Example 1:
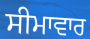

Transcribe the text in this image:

ਸੀਮਾਵਾਰ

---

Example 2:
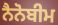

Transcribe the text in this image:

ਨੈਨੋਬੀਮ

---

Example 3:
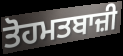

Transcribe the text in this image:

ਤੋਹਮਤਬਾਜ਼ੀ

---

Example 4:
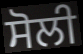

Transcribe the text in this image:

ਸੋਲੀ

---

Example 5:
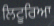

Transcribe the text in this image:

ਲਿਟੂਰਿਆ